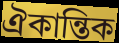
ঐকান্তিক